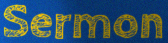
Sermon